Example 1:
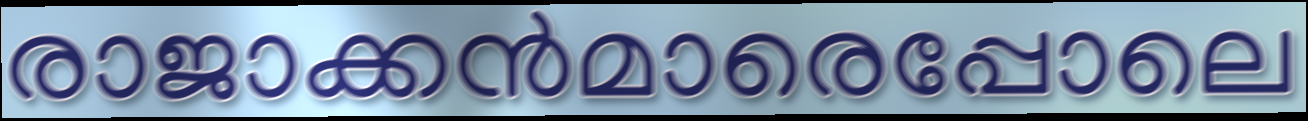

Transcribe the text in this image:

രാജാക്കൻമാരെപ്പോലെ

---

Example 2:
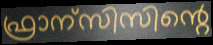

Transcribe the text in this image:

ഫ്രാന്സിസിന്റെ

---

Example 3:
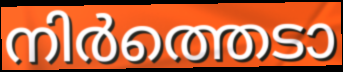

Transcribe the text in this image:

നിർത്തെടാ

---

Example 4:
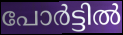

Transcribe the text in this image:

പോർട്ടിൽ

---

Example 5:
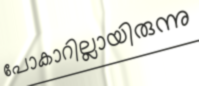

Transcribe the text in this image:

പോകാറില്ലായിരുന്നു